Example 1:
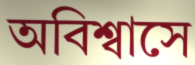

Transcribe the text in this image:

অবিশ্বাসে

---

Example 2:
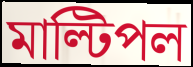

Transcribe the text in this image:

মাল্টিপল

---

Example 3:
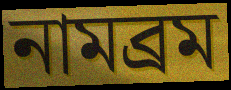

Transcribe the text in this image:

নামব্রম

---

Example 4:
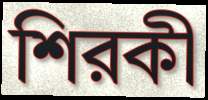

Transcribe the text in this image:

শিরকী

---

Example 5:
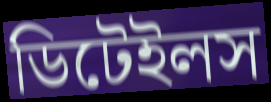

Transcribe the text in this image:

ডিটেইলস